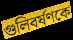
গুলিবর্ষণকে